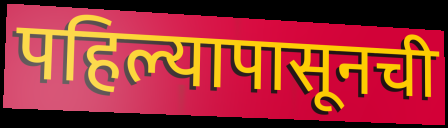
पहिल्यापासूनची